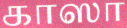
காஸா